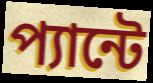
প্যান্টে